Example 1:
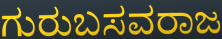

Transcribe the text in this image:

ಗುರುಬಸವರಾಜ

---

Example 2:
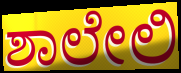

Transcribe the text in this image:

ಶಾಲೇಲಿ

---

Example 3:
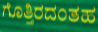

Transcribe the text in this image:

ಗೊತ್ತಿರದಂತಹ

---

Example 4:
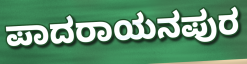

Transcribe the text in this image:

ಪಾದರಾಯನಪುರ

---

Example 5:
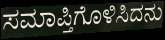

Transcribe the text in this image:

ಸಮಾಪ್ತಿಗೊಳಿಸಿದನು